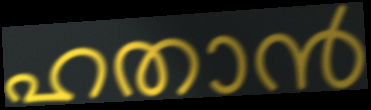
ഹതാൻ